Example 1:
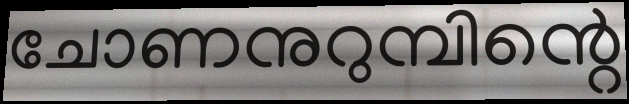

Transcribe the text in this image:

ചോണനുറുമ്പിന്റെ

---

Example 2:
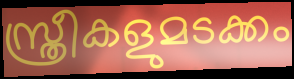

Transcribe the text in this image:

സ്ത്രീകളുമടക്കം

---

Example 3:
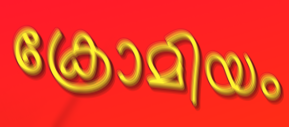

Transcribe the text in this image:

ക്രോമിയം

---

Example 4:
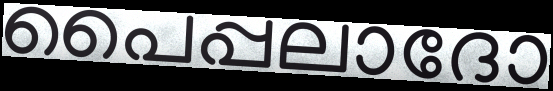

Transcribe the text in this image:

പൈപ്പലാദോ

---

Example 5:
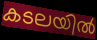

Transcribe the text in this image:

കടലയിൽ